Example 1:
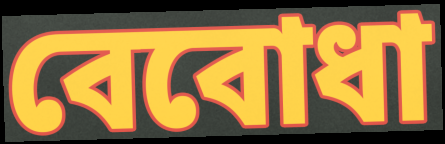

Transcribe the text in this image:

বেবোধা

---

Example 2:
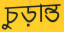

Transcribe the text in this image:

চুড়ান্ত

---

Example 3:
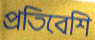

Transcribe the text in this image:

প্রতিবেশি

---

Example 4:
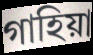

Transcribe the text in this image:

গাহিয়া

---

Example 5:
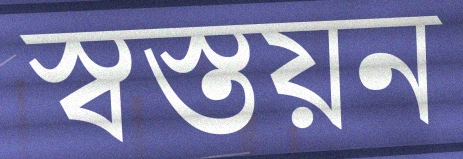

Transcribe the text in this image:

স্বস্তয়ন